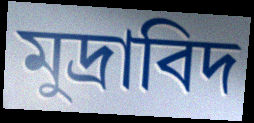
মুদ্ৰাবিদ